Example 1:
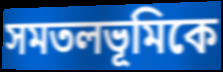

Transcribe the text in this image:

সমতলভূমিকে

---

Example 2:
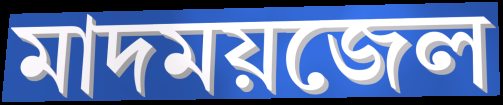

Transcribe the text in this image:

মাদময়জেল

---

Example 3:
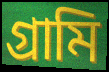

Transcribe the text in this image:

গ্রামি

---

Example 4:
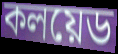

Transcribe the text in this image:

কলয়েড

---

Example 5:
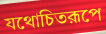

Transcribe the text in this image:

যথোচিতরূপে